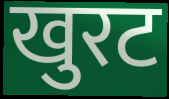
खुरट